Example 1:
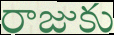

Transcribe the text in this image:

రాజుకు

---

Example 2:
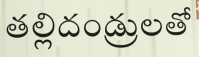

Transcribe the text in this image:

తల్లిదండ్రులతో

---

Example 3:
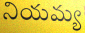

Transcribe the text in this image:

నియమ్య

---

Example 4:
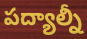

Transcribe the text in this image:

పద్యాల్నీ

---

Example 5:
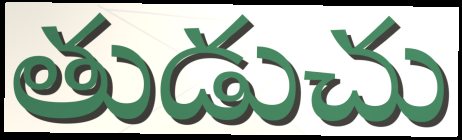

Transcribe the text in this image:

తుడుచు